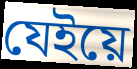
যেইয়ে